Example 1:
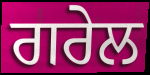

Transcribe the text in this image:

ਗਰੇਲ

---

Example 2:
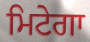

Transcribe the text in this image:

ਮਿਟੇਗਾ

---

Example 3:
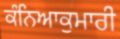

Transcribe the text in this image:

ਕੰਨਿਆਕੁਮਾਰੀ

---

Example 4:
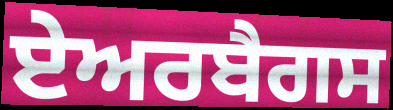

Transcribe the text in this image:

ਏਅਰਬੈਗਸ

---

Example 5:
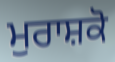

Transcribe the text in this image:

ਮੁਰਾਸ਼ਕੋ